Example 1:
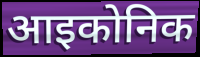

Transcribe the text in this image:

आइकोनिक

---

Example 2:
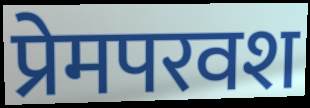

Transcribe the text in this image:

प्रेमपरवश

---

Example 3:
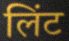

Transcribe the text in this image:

लिंट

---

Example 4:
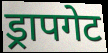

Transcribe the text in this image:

ड्रापगेट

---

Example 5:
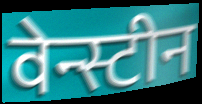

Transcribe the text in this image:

वेन्स्टीन